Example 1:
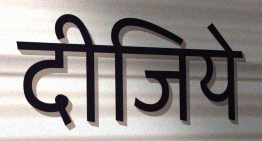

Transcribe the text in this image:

दीजिये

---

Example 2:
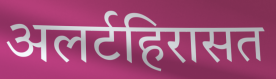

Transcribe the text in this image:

अलर्टहिरासत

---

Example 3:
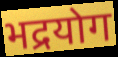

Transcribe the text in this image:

भद्रयोग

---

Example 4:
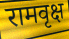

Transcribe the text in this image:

रामवृक्ष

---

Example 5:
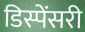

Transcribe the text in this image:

डिस्पेंसरी